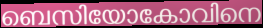
ബെസിയോകോവിനെ